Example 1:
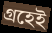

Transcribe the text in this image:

গ্রহেই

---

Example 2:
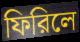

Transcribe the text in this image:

ফিরিলে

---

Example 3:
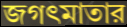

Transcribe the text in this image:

জগৎমাতার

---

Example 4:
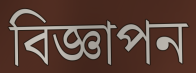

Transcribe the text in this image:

বিজ্ঞাপন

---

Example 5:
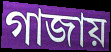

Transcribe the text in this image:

গাজায়